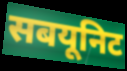
सबयूनिट